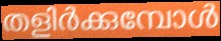
തളിർക്കുമ്പോൾ